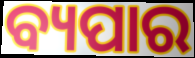
ବ୍ୟପାର